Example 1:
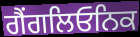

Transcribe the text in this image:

ਗੈਂਗਲਿਓਨਿਕ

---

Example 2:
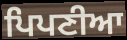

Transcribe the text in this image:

ਪਿਪਣੀਆ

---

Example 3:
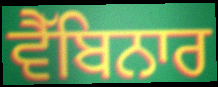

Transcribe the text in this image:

ਵੈੱਬਿਨਾਰ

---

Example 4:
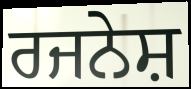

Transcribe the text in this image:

ਰਜਨੇਸ਼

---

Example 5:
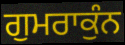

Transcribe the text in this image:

ਗੁਮਰਾਕੁੰਨ